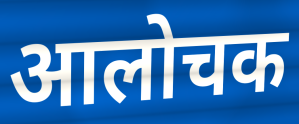
आलोचक